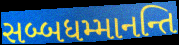
સબ્બધમ્માનન્તિ